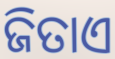
ଜିତାଏ